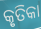
କୃତିକା